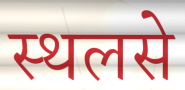
स्थलसे